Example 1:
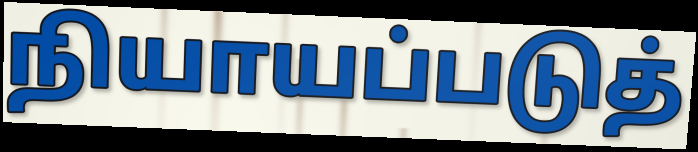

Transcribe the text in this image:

நியாயப்படுத்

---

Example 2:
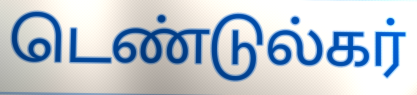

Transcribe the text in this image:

டெண்டுல்கர்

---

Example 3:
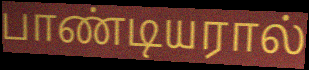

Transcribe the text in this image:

பாண்டியரால்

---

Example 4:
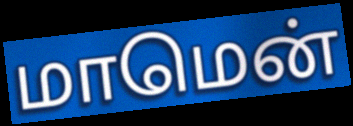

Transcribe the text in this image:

மாமென்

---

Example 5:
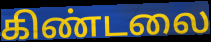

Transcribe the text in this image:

கிண்டலை